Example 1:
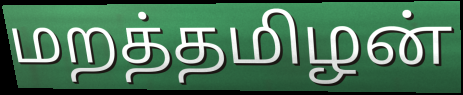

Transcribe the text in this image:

மறத்தமிழன்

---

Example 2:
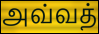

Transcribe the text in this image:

அவ்வத்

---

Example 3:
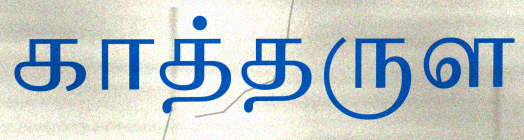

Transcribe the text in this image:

காத்தருள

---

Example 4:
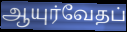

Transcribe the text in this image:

ஆயுர்வேதப்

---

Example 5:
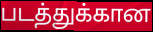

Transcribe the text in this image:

படத்துக்கான